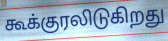
கூக்குரலிடுகிறது